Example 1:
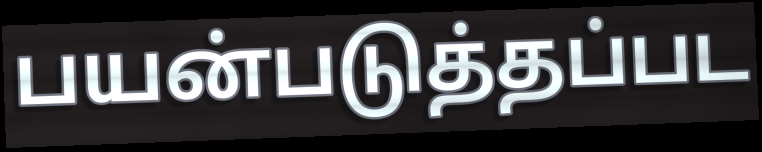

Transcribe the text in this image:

பயன்படுத்தப்பட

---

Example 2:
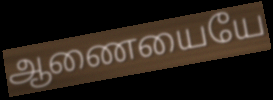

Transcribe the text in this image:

ஆணையையே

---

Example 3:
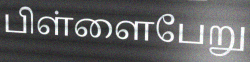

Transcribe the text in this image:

பிள்ளைபேறு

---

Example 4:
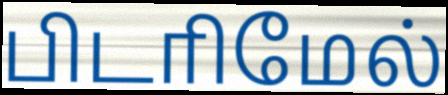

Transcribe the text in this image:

பிடரிமேல்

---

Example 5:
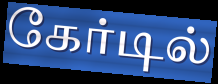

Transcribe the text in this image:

கேர்டில்